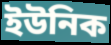
ইউনিক